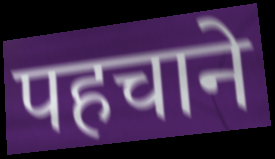
पहचाने